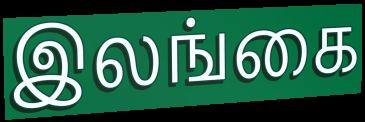
இலங்கை